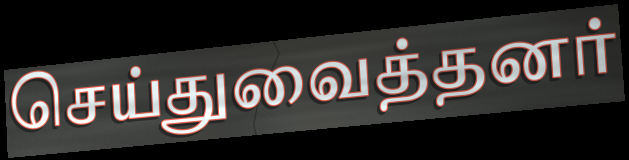
செய்துவைத்தனர்